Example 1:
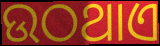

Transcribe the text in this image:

ଉଠଥାଏ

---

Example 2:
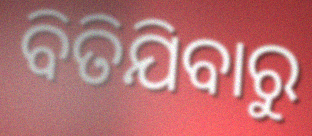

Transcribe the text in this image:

ବିତିଯିବାରୁ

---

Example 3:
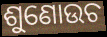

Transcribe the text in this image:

ଶୁଣୋଉଚ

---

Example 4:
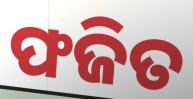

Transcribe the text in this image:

ଫଜିତ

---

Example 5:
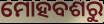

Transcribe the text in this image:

ମୋହବଶରୁ